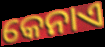
କେନାଏ